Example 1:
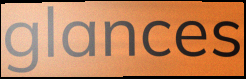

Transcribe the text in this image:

glances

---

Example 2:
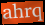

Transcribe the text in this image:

ahrq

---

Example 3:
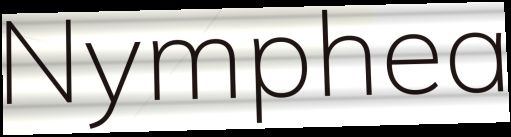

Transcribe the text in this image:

Nymphea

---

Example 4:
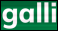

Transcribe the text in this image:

galli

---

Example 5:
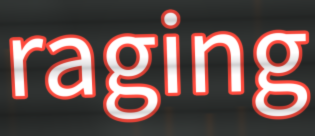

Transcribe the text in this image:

raging